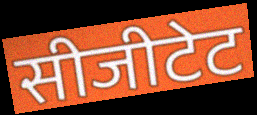
सीजीटेट